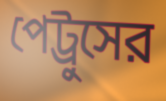
পেট্রুসের